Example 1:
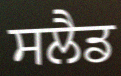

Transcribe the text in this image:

ਸਲੈਡ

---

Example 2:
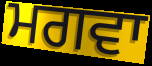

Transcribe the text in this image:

ਮਗਵਾ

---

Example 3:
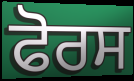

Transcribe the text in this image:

ਫੋਰਸ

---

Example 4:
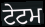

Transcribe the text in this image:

ਟੇਟਮ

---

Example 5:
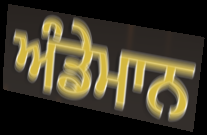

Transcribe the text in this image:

ਅੰਡੇਮਾਨ